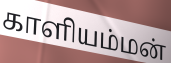
காளியம்மன்